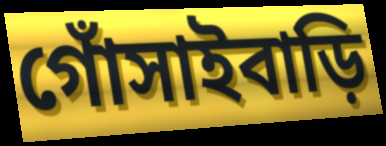
গোঁসাইবাড়ি